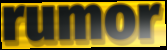
rumor